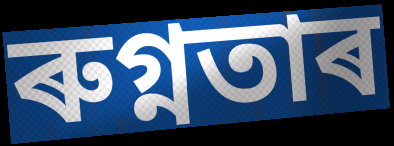
ৰুগ্নতাৰ